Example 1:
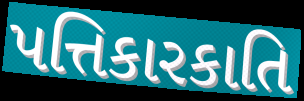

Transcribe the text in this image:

પત્તિકારકાતિ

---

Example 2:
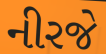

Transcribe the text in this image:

નીરજે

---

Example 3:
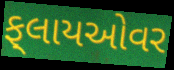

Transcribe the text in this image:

ફ્‌લાયઓવર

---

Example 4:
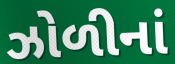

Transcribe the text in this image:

ઝોળીનાં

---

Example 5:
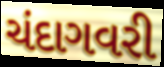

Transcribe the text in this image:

ચંદાગવરી